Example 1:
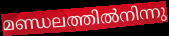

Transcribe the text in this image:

മണ്ഡലത്തിൽനിന്നു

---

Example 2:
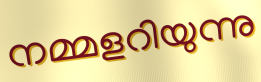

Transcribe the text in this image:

നമ്മളറിയുന്നു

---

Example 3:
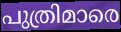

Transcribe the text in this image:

പുത്രിമാരെ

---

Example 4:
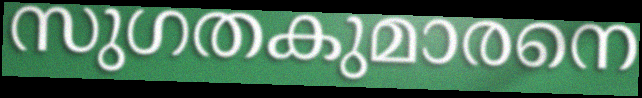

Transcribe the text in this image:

സുഗതകുമാരനെ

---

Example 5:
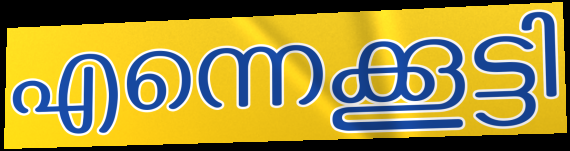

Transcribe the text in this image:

എന്നെക്കൂട്ടി